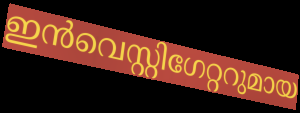
ഇൻവെസ്റ്റിഗേറ്ററുമായ